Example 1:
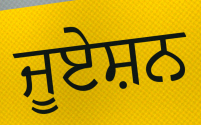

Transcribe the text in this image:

ਜੂਏਸ਼ਨ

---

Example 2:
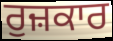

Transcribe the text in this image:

ਰੁਜ਼ਕਾਰ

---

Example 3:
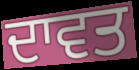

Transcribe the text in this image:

ਦਾਵਤ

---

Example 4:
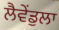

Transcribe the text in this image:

ਲੈਵੇਂਡੁਲਾ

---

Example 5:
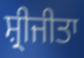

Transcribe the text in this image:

ਸ਼੍ਰੀਜੀਤਾ